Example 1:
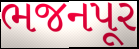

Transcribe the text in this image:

ભજનપૂર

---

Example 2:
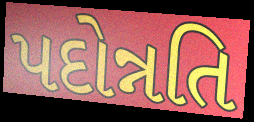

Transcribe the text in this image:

પદોન્નતિ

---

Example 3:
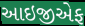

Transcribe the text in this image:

આઇજીએફ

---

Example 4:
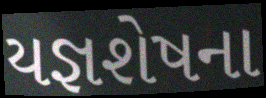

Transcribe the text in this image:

યજ્ઞશેષના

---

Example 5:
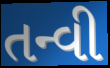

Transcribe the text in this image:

તન્વી